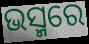
ଭସ୍ମରେ